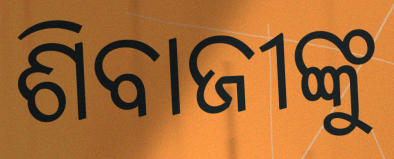
ଶିବାଜୀଙ୍କୁ